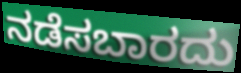
ನಡೆಸಬಾರದು